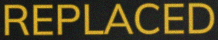
REPLACED